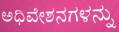
ಅಧಿವೇಶನಗಳನ್ನು